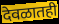
देवळातही